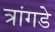
त्रांगडे